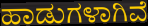
ಹಾಡುಗಳಾಗಿವೆ